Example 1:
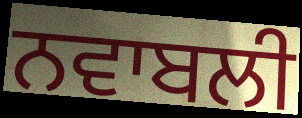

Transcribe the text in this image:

ਨਵਾਬਲੀ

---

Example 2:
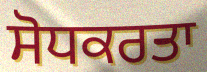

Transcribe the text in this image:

ਸੋਧਕਰਤਾ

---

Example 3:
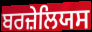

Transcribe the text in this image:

ਬਰਜ਼ੇਲਿਯਸ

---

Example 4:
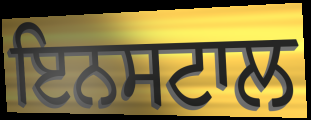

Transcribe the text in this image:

ਇਨਸਟਾਲ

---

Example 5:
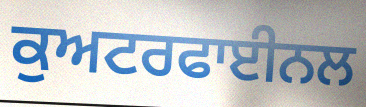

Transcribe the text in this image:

ਕੁਅਟਰਫਾਈਨਲ